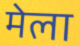
मेला